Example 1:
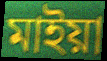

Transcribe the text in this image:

মাইয়া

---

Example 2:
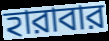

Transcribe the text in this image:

হারাবার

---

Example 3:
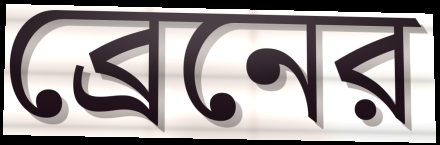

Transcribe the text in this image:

ব্রেনের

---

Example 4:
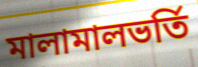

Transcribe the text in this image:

মালামালভর্তি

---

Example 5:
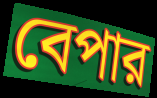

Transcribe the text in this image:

বেপার